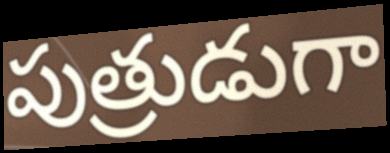
పుత్రుడుగా